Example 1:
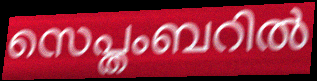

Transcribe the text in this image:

സെപ്തംബറിൽ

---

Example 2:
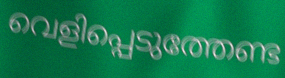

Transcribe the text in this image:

വെളിപ്പെടുത്തേണ്ട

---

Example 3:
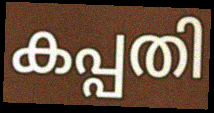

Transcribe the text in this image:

കപ്പതി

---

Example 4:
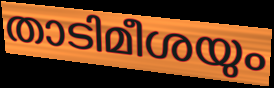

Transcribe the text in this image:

താടിമീശയും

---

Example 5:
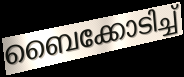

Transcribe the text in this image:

ബൈക്കോടിച്ച്